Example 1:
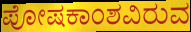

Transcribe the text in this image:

ಪೋಷಕಾಂಶವಿರುವ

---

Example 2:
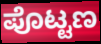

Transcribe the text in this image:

ಪೊಟ್ಟಣ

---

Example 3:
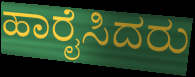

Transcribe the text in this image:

ಹಾರೈಸಿದರು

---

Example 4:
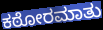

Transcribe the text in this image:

ಕಠೋರಮಾತು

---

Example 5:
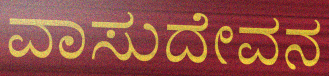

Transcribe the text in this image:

ವಾಸುದೇವನ